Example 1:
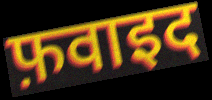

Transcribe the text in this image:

फ़वाइद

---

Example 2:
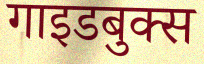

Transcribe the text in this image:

गाइडबुक्स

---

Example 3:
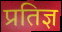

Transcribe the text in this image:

प्रतिज्ञ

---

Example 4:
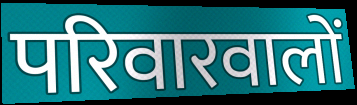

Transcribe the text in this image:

परिवारवालों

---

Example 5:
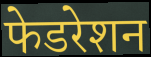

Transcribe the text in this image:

फेडरेशन